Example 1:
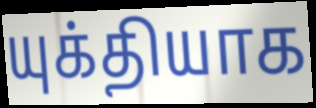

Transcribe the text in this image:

யுக்தியாக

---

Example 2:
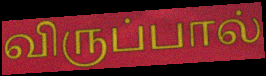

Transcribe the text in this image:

விருப்பால்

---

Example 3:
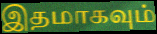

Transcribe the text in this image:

இதமாகவும்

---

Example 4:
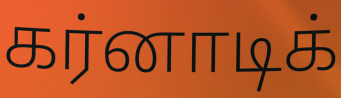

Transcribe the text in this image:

கர்னாடிக்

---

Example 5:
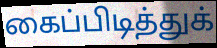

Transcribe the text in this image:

கைப்பிடித்துக்